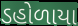
ડહોળાયા